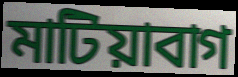
মাটিয়াবাগ